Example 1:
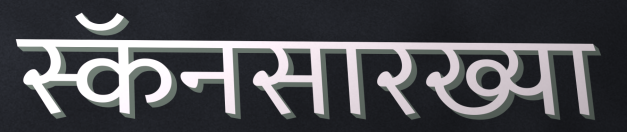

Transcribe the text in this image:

स्कॅनसारख्या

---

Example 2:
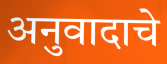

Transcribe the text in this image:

अनुवादाचे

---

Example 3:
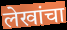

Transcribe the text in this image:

लेखांचा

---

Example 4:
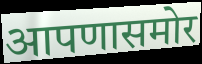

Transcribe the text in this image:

आपणासमोर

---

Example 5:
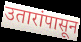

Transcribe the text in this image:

उतारांपासून